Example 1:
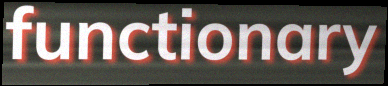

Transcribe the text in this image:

functionary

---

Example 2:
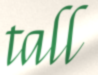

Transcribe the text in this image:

tall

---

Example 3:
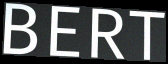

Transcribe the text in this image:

BERT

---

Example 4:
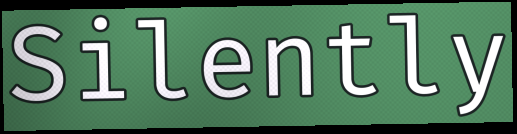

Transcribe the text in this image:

Silently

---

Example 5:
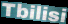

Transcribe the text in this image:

Tbilisi